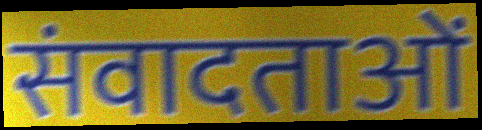
संवादताओं